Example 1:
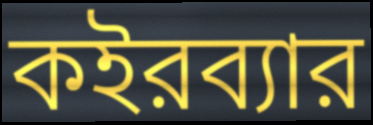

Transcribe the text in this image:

কইরব্যার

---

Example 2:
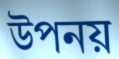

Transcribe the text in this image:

উপনয়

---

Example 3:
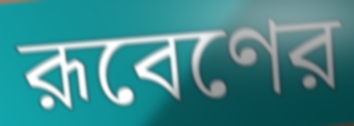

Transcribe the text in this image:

রূবেণের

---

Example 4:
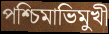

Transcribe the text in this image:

পশ্চিমাভিমুখী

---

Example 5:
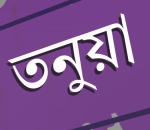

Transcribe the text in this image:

তনুয়া